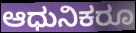
ಆಧುನಿಕರೂ